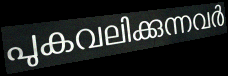
പുകവലിക്കുന്നവർ